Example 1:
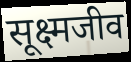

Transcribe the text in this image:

सूक्ष्मजीव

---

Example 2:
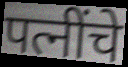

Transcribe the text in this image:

पत्नींचे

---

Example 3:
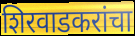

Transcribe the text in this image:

शिरवाडकरांचा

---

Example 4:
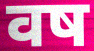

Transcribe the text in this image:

वष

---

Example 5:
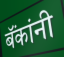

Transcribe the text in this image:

बॅंकांनी